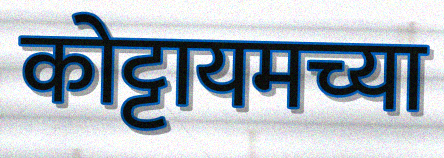
कोट्टायमच्या